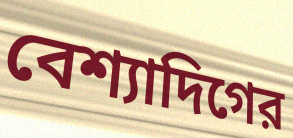
বেশ্যাদিগের